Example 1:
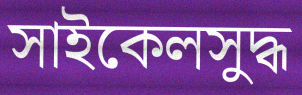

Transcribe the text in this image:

সাইকেলসুদ্ধ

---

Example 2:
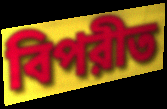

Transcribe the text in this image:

বিপরীত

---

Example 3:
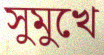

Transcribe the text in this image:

সুমুখে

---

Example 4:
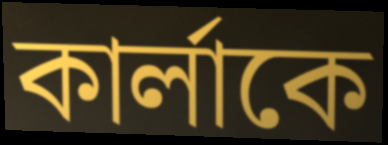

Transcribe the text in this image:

কার্লাকে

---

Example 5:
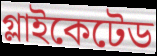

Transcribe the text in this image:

গ্লাইকেটেড